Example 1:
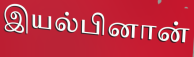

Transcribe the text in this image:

இயல்பினான்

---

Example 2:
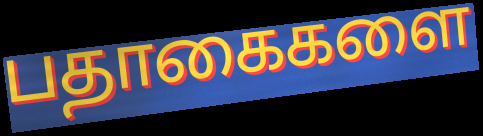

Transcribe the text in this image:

பதாகைகளை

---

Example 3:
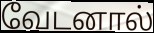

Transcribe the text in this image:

வேடனால்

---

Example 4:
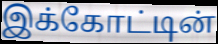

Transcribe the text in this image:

இக்கோட்டின்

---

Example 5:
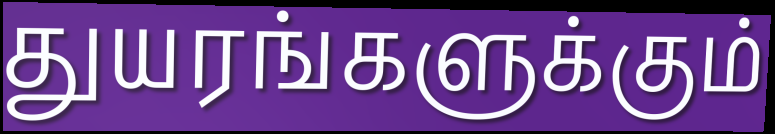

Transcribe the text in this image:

துயரங்களுக்கும்